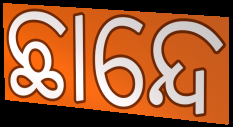
ଛାନ୍ଦେ